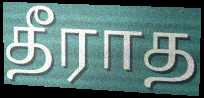
தீராத